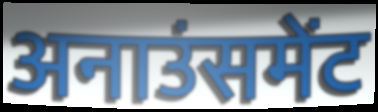
अनाउंसमेंट